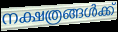
നക്ഷത്രങ്ങൾക്ക്